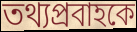
তথ্যপ্রবাহকে